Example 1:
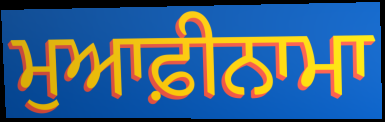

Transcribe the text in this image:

ਮੁਆਫ਼ੀਨਾਮਾ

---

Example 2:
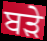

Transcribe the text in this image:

ਬਡ਼ੇ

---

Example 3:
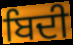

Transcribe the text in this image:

ਬਿਦੀ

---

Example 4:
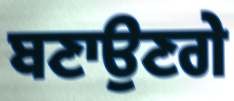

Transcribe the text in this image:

ਬਣਾਉਣਗੇ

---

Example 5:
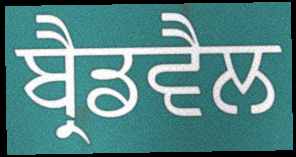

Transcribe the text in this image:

ਬ੍ਰੈਡਵੈਲ